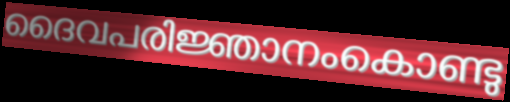
ദൈവപരിജ്ഞാനംകൊണ്ടു